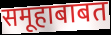
समूहाबाबत